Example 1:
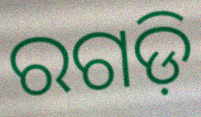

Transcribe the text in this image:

ରଗଡ଼ି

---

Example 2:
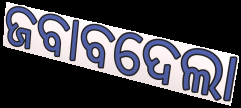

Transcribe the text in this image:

ଜବାବଦେଲା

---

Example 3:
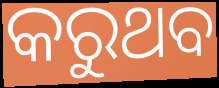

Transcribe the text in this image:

କରୁଥବ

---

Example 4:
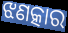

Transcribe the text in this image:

ଝଣତ୍କାର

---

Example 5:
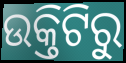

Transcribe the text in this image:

ଉକ୍ତିଟିରୁ